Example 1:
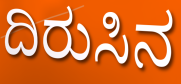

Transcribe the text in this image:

ದಿರುಸಿನ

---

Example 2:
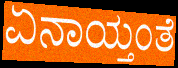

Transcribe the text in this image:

ಏನಾಯ್ತಂತೆ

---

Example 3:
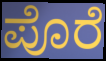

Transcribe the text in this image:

ಪೊರೆ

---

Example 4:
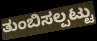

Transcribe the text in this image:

ತುಂಬಿಸಲ್ಪಟ್ಟು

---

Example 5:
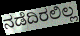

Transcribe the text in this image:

ನಡೆದಿರಲಿಲ್ಲ